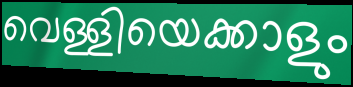
വെള്ളിയെക്കാളും